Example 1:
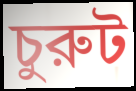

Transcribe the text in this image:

চুরুট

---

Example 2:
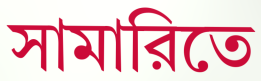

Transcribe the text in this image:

সামারিতে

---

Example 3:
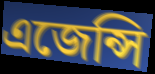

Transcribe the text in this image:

এজেন্সি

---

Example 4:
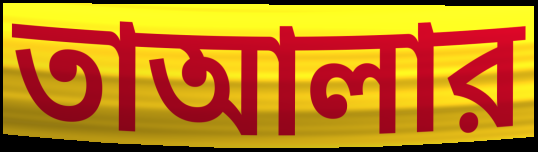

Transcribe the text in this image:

তাআলার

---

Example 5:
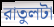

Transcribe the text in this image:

রাতুলটা